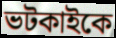
ভটকাইকে